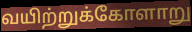
வயிற்றுக்கோளாறு